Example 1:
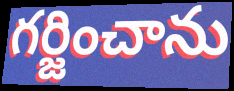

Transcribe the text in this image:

గర్జించాను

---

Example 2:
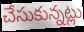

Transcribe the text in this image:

చేసుకున్నట్లు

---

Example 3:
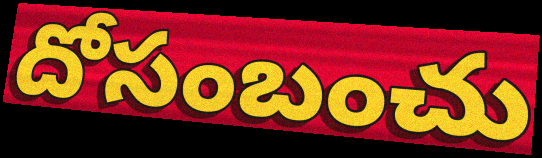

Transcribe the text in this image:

దోసంబంచు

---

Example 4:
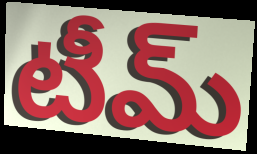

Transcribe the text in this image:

టీమ్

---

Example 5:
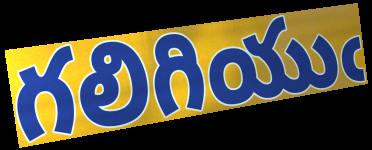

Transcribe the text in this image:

గలిగియుఁ